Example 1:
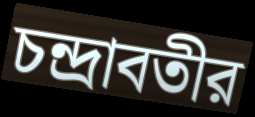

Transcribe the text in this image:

চন্দ্রাবতীর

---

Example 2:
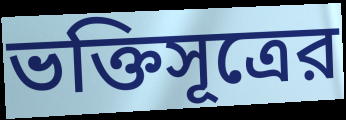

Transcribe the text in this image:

ভক্তিসূত্রের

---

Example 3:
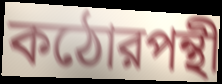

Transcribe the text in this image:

কঠোরপন্থী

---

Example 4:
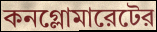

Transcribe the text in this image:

কনগ্লোমারেটের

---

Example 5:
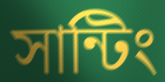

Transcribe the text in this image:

সান্টিং